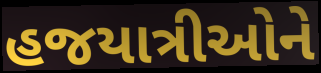
હજયાત્રીઓને